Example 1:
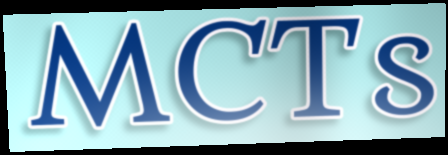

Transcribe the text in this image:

MCTs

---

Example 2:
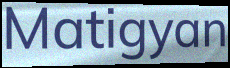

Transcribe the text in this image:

Matigyan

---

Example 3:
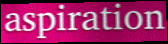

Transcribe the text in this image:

aspiration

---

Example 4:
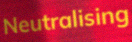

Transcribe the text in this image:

Neutralising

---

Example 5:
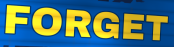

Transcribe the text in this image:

FORGET